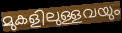
മുകളിലുള്ളവയും